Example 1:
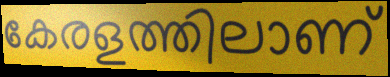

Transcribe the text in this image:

കേരളത്തിലാണ്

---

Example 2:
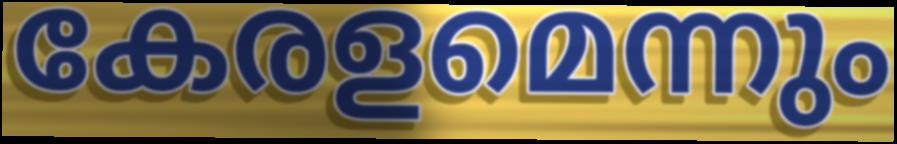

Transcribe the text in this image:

കേരളമെന്നും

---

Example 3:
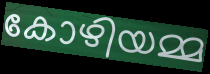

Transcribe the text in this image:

കോഴിയമ്മ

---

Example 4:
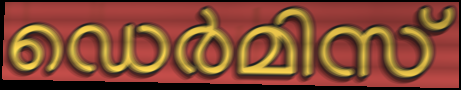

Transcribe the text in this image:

ഡെർമിസ്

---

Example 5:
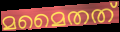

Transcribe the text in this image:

മമൈതത്